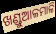
ଖଣ୍ଡୁଆଳମାଳି